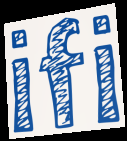
ifi